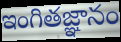
ఇంగితజ్ఞానం